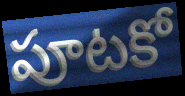
పూటకో